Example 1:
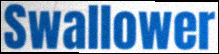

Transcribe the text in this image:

Swallower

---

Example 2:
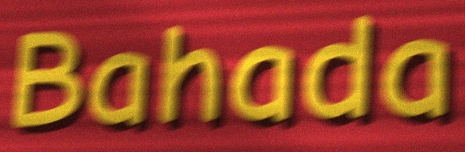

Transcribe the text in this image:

Bahada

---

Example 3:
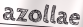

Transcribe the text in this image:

azollae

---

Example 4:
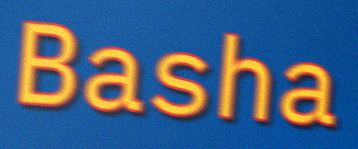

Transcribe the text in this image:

Basha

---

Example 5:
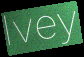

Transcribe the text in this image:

Ivey